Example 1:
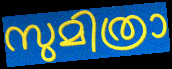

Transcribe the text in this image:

സുമിത്രാ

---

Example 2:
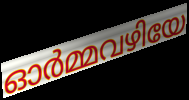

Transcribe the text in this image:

ഓർമ്മവഴിയേ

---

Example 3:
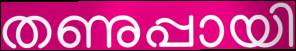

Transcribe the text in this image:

തണുപ്പായി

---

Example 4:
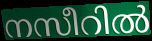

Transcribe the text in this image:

നസീറിൽ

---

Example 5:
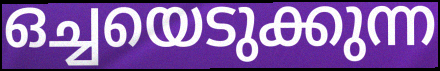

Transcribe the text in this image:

ഒച്ചയെടുക്കുന്ന